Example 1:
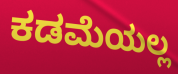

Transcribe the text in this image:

ಕಡಮೆಯಲ್ಲ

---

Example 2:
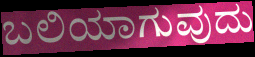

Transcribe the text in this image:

ಬಲಿಯಾಗುವುದು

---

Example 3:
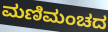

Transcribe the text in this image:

ಮಣಿಮಂಚದ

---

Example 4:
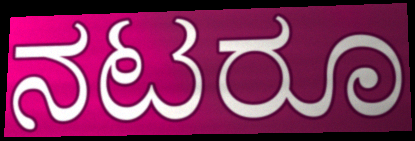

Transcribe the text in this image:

ನಟರೂ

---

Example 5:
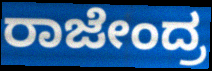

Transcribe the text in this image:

ರಾಜೇಂದ್ರ